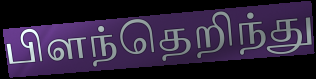
பிளந்தெறிந்து